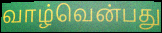
வாழ்வென்பது